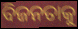
ବିଜନତାକୁ